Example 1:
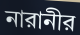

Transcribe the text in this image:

নারানীর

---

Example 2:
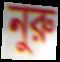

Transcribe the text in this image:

নুরু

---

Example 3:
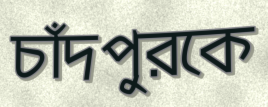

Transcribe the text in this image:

চাঁদপুরকে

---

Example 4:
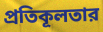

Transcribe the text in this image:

প্রতিকূলতার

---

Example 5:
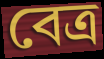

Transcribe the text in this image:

বেত্র